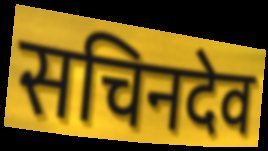
सचिनदेव